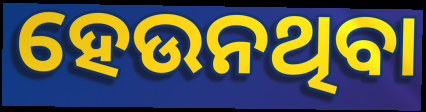
ହେଉନଥିବା